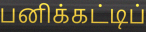
பனிக்கட்டிப்